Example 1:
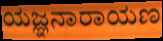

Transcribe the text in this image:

ಯಜ್ಞನಾರಾಯಣ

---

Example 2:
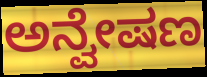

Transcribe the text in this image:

ಅನ್ವೇಷಣ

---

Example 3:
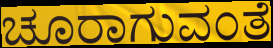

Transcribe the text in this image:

ಚೂರಾಗುವಂತೆ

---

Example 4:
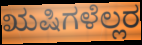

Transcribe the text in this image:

ಋಷಿಗಳೆಲ್ಲರ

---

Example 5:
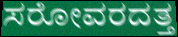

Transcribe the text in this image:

ಸರೋವರದತ್ತ